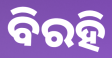
ବିରହି